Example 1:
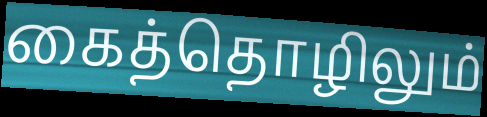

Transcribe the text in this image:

கைத்தொழிலும்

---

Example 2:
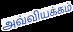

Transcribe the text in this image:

அவ்வியக்கம்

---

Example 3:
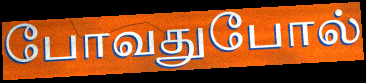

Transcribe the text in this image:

போவதுபோல்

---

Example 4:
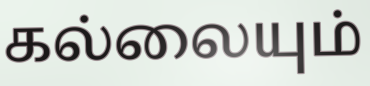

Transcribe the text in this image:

கல்லையும்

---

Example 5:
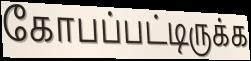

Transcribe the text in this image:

கோபப்பட்டிருக்க